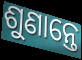
ଶୁଣାନ୍ତେ